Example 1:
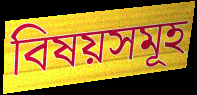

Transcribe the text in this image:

বিষয়সমূহ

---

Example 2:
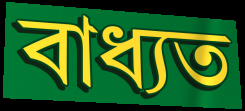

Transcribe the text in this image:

বাধ্যত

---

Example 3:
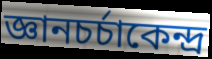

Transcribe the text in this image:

জ্ঞানচর্চাকেন্দ্র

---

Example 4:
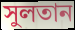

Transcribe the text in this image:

সুলতান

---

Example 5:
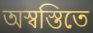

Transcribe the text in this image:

অস্বস্তিতে